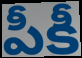
పీకీ